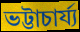
ভট্টাচাৰ্য্য